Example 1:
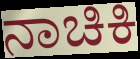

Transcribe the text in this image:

ನಾಚಿಕಿ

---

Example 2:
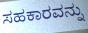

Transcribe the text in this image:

ಸಹಕಾರವನ್ನು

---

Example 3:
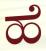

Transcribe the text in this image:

ಹೆ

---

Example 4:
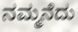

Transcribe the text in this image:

ನಮ್ಮನೆದು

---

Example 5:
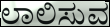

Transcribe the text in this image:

ಲಾಲಿಸುವ